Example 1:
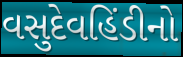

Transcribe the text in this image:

વસુદેવહિંડીનો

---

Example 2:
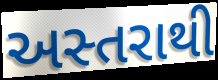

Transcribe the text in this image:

અસ્તરાથી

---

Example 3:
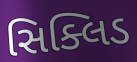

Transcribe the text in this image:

સિક્લિડ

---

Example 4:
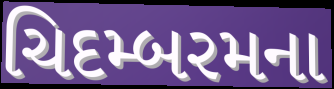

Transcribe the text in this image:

ચિદમ્બરમના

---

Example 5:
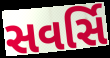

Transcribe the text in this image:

સવર્સિ